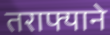
तराफ्याने